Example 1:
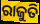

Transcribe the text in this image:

ରାଜୁତି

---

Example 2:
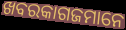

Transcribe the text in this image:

ଖବରକାଗଜମାନେ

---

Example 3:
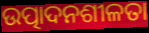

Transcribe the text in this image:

ଉତ୍ପାଦନଶୀଳତା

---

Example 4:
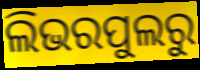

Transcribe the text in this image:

ଲିଭରପୁଲରୁ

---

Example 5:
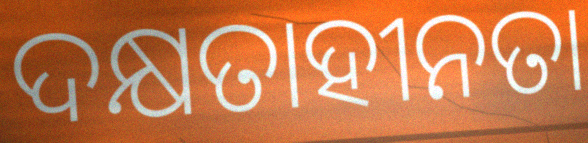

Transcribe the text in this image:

ଦକ୍ଷତାହୀନତା